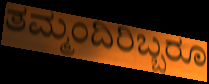
ತಮ್ಮಂದಿರಿಬ್ಬರೂ